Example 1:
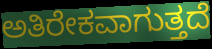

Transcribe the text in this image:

ಅತಿರೇಕವಾಗುತ್ತದೆ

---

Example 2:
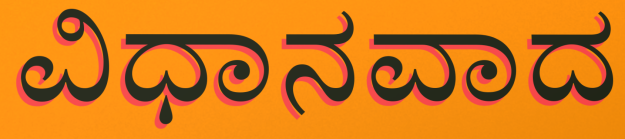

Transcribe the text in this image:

ವಿಧಾನವಾದ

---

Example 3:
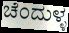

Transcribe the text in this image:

ಚೆಂದುಳ್ಳ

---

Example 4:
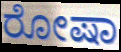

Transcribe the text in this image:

ರೋಷಾ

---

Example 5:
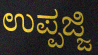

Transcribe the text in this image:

ಉಪ್ಪಜ್ಜಿ